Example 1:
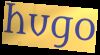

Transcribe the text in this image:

hugo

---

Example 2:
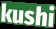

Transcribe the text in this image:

kushi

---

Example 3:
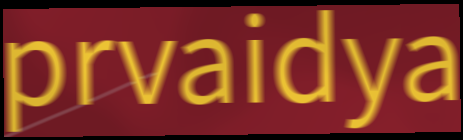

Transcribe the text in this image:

prvaidya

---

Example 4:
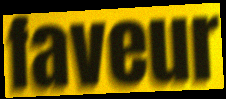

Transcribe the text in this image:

faveur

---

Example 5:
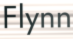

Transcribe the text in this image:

Flynn